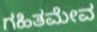
ಗಹಿತಮೇವ